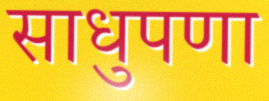
साधुपणा